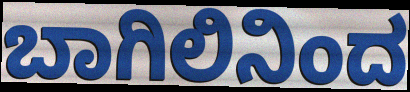
ಬಾಗಿಲಿನಿಂದ